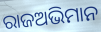
ରାଜଅଭିମାନ